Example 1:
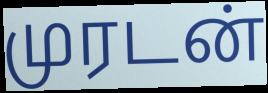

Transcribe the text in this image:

முரடன்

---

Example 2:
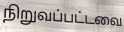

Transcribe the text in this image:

நிறுவப்பட்டவை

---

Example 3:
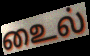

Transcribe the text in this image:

உைல்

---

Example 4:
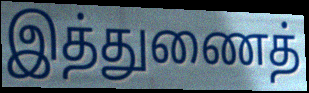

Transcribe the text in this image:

இத்துணைத்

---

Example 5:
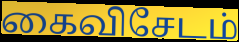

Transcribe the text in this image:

கைவிசேடம்